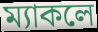
ম্যাকলে